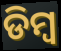
ଡିମ୍ଵ